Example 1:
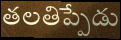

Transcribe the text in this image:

తలతిప్పేడు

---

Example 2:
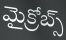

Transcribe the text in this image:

మైక్రోబ్స్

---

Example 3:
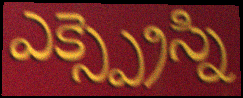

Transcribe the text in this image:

ఎక్స్ప్రెస్ని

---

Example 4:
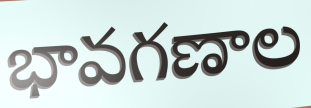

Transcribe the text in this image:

భావగణాల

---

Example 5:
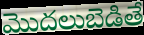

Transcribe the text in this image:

మొదలుబెడితే